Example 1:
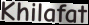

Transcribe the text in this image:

Khilafat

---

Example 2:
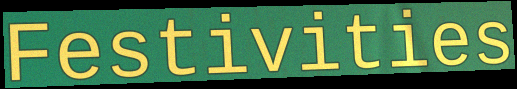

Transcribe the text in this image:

Festivities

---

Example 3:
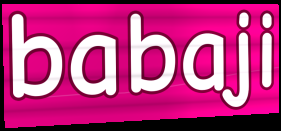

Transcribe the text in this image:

babaji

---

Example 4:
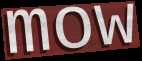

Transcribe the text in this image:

mow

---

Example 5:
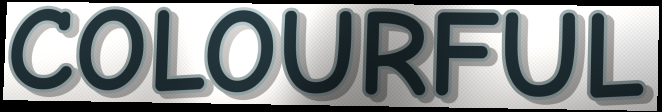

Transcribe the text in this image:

COLOURFUL